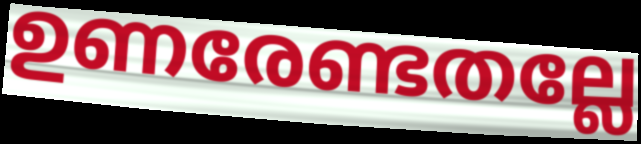
ഉണരേണ്ടതല്ലേ